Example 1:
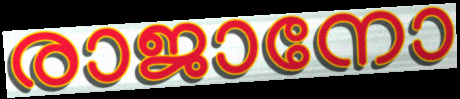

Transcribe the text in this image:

രാജാനോ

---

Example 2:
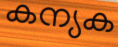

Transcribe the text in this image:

കന്യക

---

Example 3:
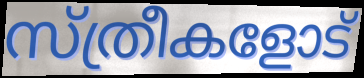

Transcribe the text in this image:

സ്ത്രീകളോട്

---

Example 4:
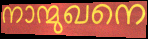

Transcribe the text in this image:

നാന്മുഖനെ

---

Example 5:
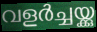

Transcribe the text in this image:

വളർച്ചയ്ക്കു